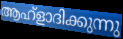
ആഹ്ളാദിക്കുന്നു